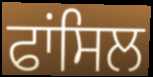
ਫਾਂਸਿਲ